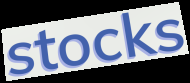
stocks